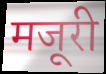
मजूरी